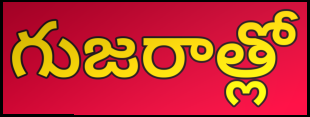
గుజరాత్లో